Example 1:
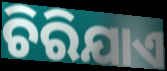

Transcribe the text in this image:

ଚିରିଯାଏ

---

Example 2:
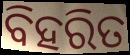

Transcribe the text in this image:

ବିହରିତ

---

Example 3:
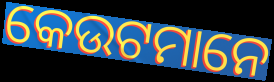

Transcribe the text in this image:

କେଉଟମାନେ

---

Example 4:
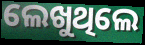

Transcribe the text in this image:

ଲେଖୁଥିଲେ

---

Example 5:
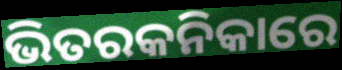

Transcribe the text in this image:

ଭିତରକନିକାରେ